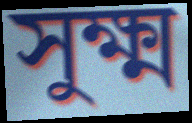
সুক্ষ্ম